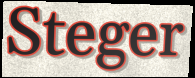
Steger